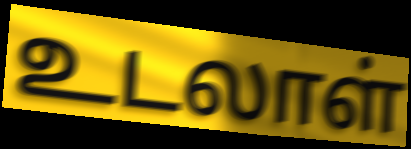
உடலாள்